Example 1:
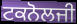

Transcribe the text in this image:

ਟਕਨੋਲਜੀ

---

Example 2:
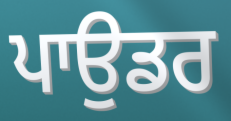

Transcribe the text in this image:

ਪਾਉਡਰ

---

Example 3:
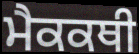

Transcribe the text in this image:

ਮੈਕਕਥੀ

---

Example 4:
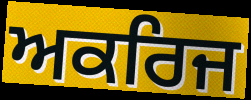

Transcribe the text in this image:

ਅਕਰਿਜ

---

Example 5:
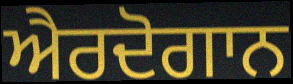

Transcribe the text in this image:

ਐਰਦੋਗਾਨ